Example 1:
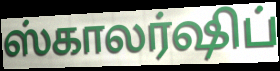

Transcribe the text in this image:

ஸ்காலர்ஷிப்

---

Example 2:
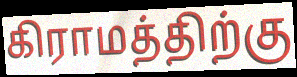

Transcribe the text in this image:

கிராமத்திற்கு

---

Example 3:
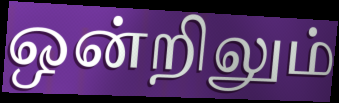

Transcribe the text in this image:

ஒன்றிலும்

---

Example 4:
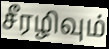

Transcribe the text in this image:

சீரழிவும்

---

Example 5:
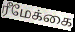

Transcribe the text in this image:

ரீமேக்கை